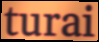
turai